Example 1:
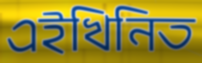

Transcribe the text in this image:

এইখিনিত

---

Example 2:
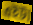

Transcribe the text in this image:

এইটা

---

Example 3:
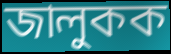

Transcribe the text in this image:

জালুকক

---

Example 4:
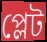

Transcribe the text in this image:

প্লেট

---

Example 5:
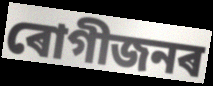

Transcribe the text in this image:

ৰোগীজনৰ